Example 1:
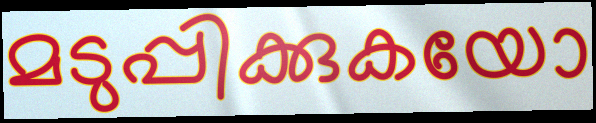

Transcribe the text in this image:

മടുപ്പിക്കുകയോ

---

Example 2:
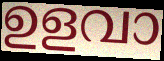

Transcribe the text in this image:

ഉളവാ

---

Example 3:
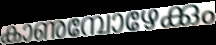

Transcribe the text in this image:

കാണുമ്പോഴേക്കും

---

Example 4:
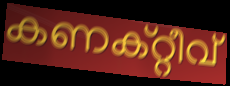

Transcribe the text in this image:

കണക്റ്റീവ്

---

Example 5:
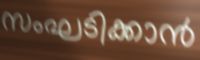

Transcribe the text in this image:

സംഘടിക്കാൻ